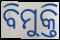
ବିମୁକ୍ତି